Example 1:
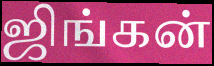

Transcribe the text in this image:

ஜிங்கன்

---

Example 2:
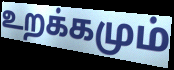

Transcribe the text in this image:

உறக்கமும்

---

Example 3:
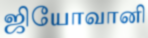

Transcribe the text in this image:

ஜியோவானி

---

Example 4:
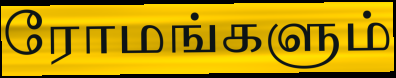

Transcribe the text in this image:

ரோமங்களும்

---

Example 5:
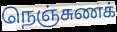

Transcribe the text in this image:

நெஞ்சுணக்